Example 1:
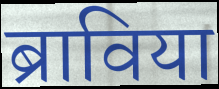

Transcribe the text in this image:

ब्राविया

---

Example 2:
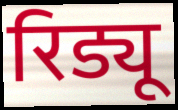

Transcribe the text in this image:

रिड्यू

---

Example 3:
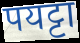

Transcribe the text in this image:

पयट्टा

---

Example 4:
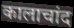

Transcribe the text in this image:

कालाचांद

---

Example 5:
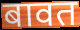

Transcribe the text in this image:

बावत